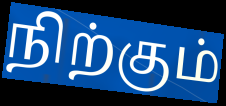
நிற்கும்